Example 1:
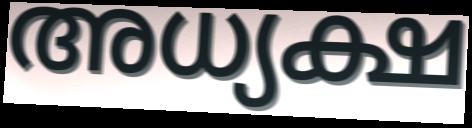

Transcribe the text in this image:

അധ്യക്ഷ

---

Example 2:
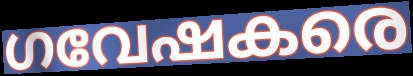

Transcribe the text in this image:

ഗവേഷകരെ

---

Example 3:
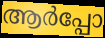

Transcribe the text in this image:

ആർപ്പോ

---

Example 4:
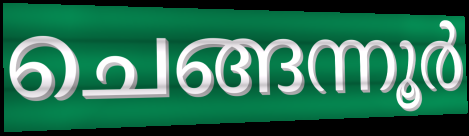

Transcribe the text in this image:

ചെങ്ങന്നൂർ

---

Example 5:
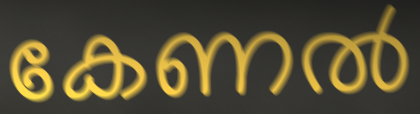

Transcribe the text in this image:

കേണൽ